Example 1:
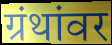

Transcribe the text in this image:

ग्रंथांवर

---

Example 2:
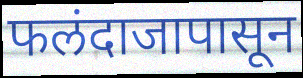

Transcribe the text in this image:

फलंदाजापासून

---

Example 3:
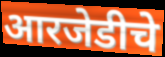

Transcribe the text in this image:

आरजेडीचे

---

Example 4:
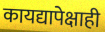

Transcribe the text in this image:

कायद्यापेक्षाही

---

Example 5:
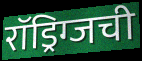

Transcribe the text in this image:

रॉड्रिग्जची